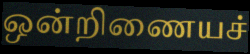
ஒன்றிணையச்